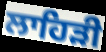
ਲਾਹਿੜੀ